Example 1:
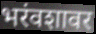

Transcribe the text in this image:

भरंवशावर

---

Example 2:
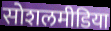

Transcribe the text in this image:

सोशलमीडिया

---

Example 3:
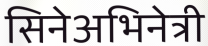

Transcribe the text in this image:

सिनेअभिनेत्री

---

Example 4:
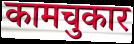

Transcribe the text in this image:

कामचुकार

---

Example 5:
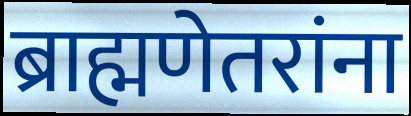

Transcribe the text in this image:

ब्राह्मणेतरांना